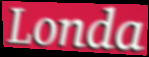
Londa